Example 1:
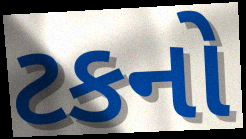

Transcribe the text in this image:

ટકનો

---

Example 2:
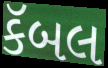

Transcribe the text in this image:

કૅબલ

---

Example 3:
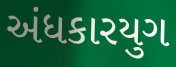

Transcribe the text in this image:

અંધકારયુગ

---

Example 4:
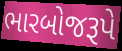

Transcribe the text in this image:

ભારબોજરૂપે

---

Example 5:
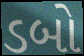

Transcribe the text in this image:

ડબો